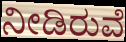
ನೀಡಿರುವೆ